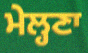
ਮੇਲ੍ਹਣਾ